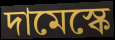
দামেস্কে